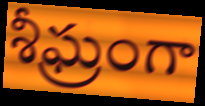
శీఘ్రంగా